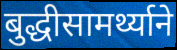
बुद्धीसामर्थ्याने